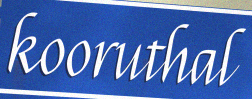
kooruthal